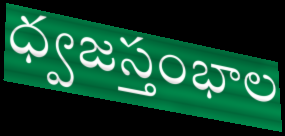
ధ్వజస్తంభాల